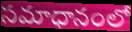
సమాధానంలో